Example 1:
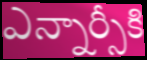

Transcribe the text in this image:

ఎన్నార్సీకి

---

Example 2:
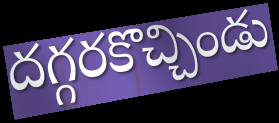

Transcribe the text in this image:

దగ్గరకొచ్చిండు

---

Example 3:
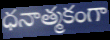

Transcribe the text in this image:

ధనాత్మకంగా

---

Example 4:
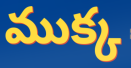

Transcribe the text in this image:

ముక్క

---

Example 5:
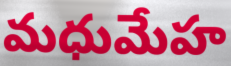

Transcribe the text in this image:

మధుమేహ